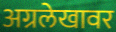
अग्रलेखावर